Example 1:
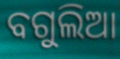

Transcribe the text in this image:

ବଗୁଲିଆ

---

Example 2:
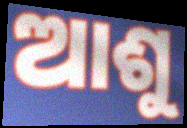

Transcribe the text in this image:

ଆଶୁ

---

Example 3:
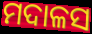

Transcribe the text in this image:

ମଦାଳସ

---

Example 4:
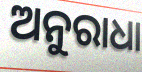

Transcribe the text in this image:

ଅନୁରାଧା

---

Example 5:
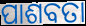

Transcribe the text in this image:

ପାଶବତା